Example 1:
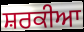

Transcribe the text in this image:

ਸ਼ਰਕੀਆ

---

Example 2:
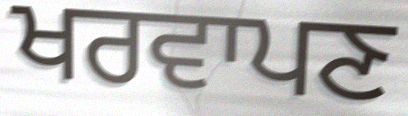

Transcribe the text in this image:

ਖਰਵਾਪਣ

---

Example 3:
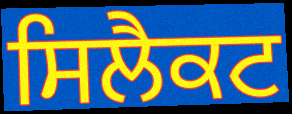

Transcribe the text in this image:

ਸਿਲੈਕਟ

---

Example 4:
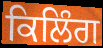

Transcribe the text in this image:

ਕਿਲਿੰਗ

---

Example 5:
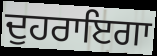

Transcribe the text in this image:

ਦੁਹਰਾਇਗਾ